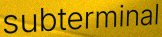
subterminal